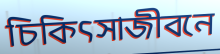
চিকিৎসাজীবনে